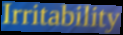
Irritability